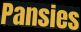
Pansies